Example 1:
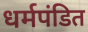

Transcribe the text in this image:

धर्मपंडित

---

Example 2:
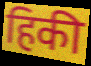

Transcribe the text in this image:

हिकी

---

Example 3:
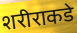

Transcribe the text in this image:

शरीराकडे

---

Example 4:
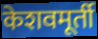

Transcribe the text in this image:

केशवमूर्ती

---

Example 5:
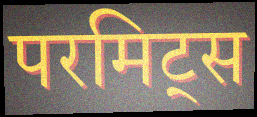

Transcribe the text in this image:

परमिट्स